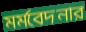
মর্মবেদনার